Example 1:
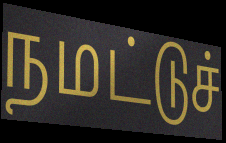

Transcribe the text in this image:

நமட்டுச்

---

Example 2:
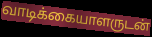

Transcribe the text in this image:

வாடிக்கையாளருடன்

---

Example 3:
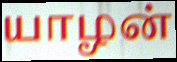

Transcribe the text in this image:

யாழன்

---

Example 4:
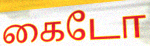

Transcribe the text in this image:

கைடோ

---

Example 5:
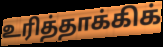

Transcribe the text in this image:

உரித்தாக்கிக்